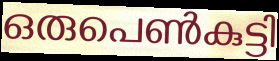
ഒരുപെൺകുട്ടി